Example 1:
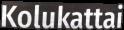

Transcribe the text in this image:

Kolukattai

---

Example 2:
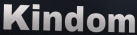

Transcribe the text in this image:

Kindom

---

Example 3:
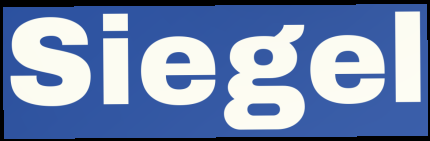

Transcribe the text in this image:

Siegel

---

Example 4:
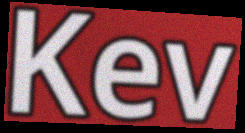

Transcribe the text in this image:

Kev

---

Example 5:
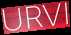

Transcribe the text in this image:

URVI